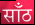
साँठ